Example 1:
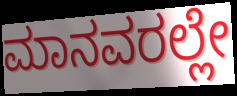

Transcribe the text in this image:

ಮಾನವರಲ್ಲೇ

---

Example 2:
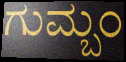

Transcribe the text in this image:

ಗುಮ್ಬಂ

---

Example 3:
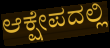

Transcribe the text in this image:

ಆಕ್ಷೇಪದಲ್ಲಿ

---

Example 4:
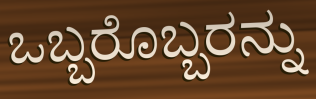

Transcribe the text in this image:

ಒಬ್ಬರೊಬ್ಬರನ್ನು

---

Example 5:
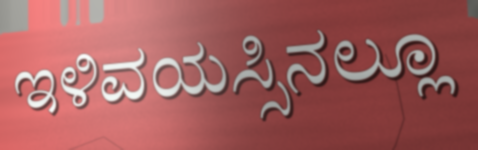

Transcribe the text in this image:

ಇಳಿವಯಸ್ಸಿನಲ್ಲೂ